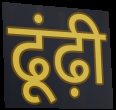
ढूंढ़ी